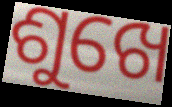
ଶୁଖେ